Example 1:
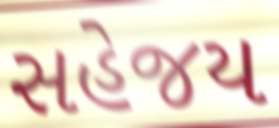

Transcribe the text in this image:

સહેજય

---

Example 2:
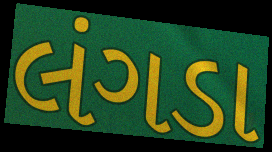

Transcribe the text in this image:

લંગડા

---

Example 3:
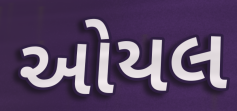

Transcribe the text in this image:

ઓયલ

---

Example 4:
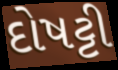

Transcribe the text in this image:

દોષટ્ટી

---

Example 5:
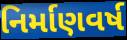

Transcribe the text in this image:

નિર્માણવર્ષ